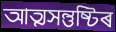
আত্মসন্তুষ্টিৰ